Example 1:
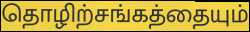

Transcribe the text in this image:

தொழிற்சங்கத்தையும்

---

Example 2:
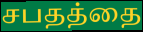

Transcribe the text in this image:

சபதத்தை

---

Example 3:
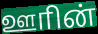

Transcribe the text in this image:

ஊரின்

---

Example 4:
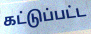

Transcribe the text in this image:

கட்டுப்பட்ட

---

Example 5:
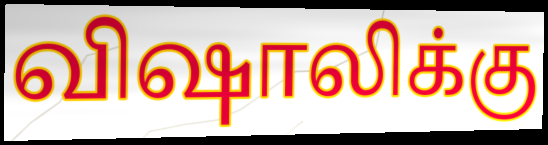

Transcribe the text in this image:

விஷாலிக்கு